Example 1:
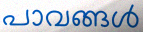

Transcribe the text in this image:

പാവങ്ങൾ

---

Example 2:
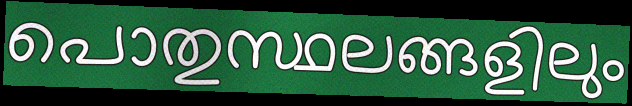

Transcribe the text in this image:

പൊതുസ്ഥലങ്ങളിലും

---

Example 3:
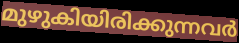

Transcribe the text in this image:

മുഴുകിയിരിക്കുന്നവർ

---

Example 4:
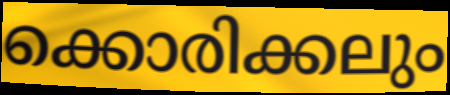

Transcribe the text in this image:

ക്കൊരിക്കലും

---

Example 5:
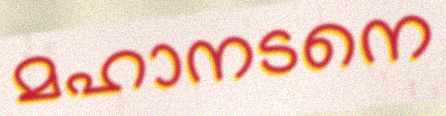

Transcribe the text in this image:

മഹാനടനെ